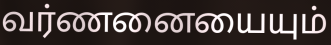
வர்ணனையையும்